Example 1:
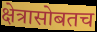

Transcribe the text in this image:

क्षेत्रासोबतच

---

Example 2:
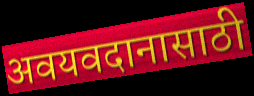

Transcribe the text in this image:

अवयवदानासाठी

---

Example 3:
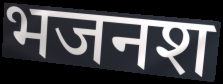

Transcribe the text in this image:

भजनश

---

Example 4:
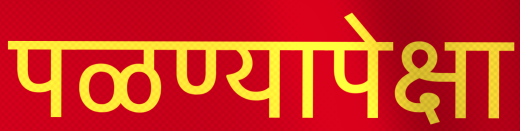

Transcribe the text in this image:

पळण्यापेक्षा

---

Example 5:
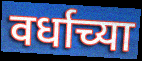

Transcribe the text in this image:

वर्धाच्या